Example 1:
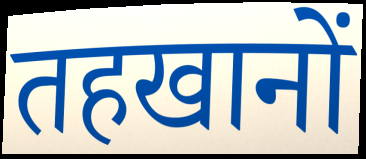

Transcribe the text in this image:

तहखानों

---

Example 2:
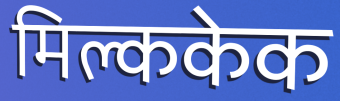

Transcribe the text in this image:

मिल्ककेक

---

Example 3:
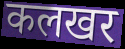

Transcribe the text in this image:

कलखर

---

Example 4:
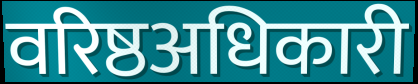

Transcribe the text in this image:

वरिष्ठअधिकारी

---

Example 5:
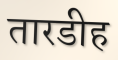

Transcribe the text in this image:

तारडीह